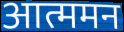
आत्ममन